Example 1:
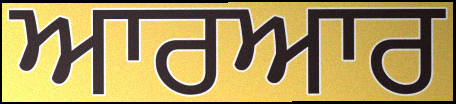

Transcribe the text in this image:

ਆਰਆਰ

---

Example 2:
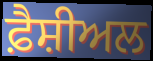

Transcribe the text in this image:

ਫ਼ੈਸ਼ੀਅਲ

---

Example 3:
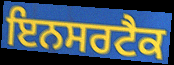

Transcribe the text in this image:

ਇਨਸਰਟੈਕ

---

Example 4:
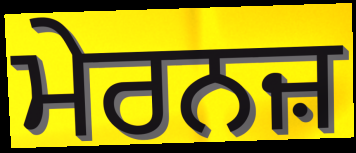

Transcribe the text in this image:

ਮੇਰਨਜ਼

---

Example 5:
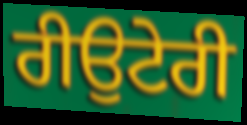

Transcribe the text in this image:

ਰੀਉਟੇਰੀ